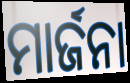
ମାର୍ଜନା